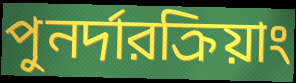
পুনর্দারক্রিয়াং